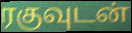
ரகுவுடன்